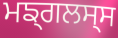
ਮਙ੍ਗਲਸ੍ਸ